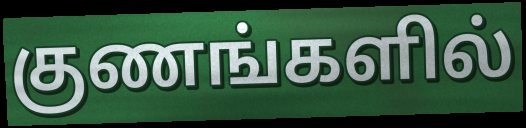
குணங்களில்